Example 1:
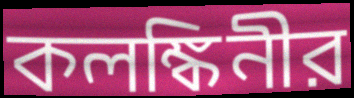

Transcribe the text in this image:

কলঙ্কিনীর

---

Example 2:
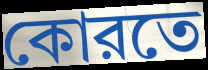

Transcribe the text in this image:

কোরতে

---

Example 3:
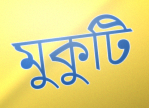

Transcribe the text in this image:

মুকুটি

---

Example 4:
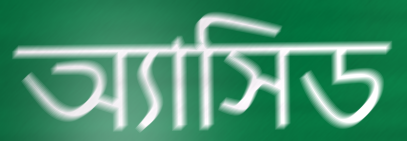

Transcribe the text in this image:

অ্যাসিড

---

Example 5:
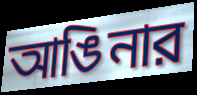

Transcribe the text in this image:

আঙিনার